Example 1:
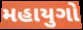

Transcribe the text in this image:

મહાયુગો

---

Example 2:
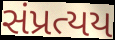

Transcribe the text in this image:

સંપ્રત્યય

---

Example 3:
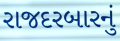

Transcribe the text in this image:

રાજદરબારનું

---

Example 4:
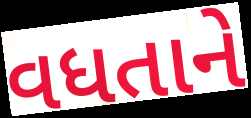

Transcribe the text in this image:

વધતાને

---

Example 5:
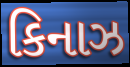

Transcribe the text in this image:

કિનાઝ